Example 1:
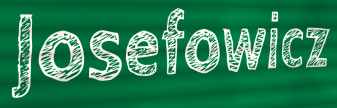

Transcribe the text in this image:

Josefowicz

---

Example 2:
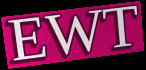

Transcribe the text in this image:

EWT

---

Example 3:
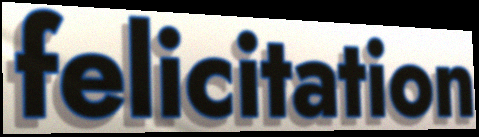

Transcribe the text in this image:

felicitation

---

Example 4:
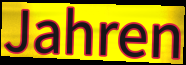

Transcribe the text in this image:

Jahren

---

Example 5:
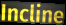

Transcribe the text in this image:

Incline